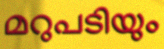
മറുപടിയും